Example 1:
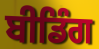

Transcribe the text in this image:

ਬੀਡਿੰਗ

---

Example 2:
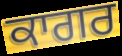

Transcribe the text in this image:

ਕਾਗਰ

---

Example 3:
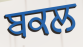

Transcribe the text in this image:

ਬਕਲ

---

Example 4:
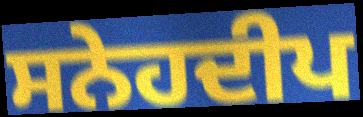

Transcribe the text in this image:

ਸਨੇਹਦੀਪ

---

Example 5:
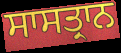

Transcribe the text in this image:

ਸਾਸਤ੍ਰਾਨ